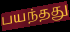
பயந்தது